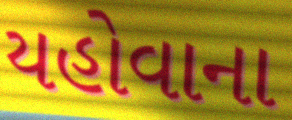
યહોવાના